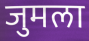
जुमला